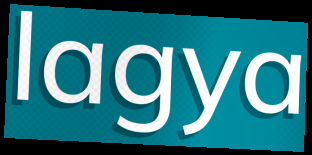
lagya